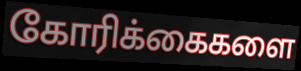
கோரிக்கைகளை